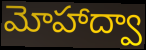
మోహాద్వా